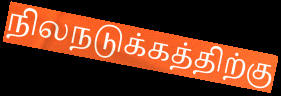
நிலநடுக்கத்திற்கு